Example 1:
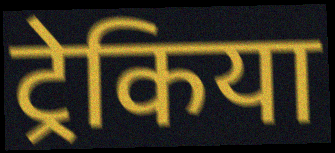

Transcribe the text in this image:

ट्रेकिया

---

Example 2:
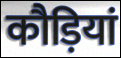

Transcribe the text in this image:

कौड़ियां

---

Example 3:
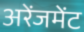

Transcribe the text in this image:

अरेंजमेंट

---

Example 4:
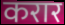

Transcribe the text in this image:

करार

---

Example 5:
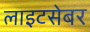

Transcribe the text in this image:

लाइटसेबर